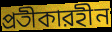
প্রতীকারহীন